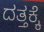
ದತ್ತಕ್ಕೆ